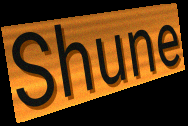
Shune